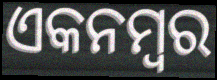
ଏକନମ୍ବର